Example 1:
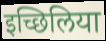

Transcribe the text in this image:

इच्छिलिया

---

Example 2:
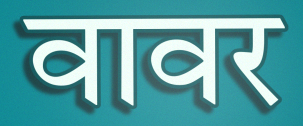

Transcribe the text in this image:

वावर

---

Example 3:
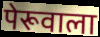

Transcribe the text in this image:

पेरूवाला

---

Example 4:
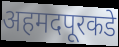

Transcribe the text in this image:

अहमदपूरकडे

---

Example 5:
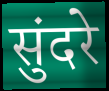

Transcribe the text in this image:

सुंदरे